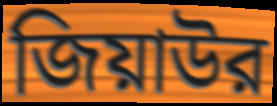
জিয়াউর